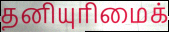
தனியுரிமைக்